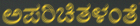
ಅಪರಿಚಿತಳಂತೆ